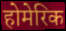
होमेरिक